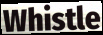
Whistle